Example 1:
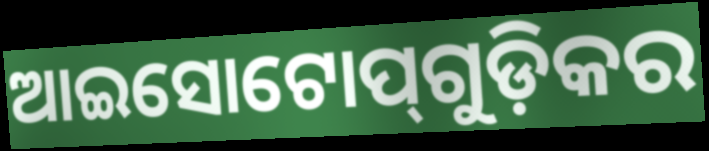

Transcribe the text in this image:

ଆଇସୋଟୋପ୍‌ଗୁଡ଼ିକର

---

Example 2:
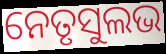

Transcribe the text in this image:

ନେତୃସୁଲଭ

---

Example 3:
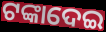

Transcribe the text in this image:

ଟଙ୍କାଦେଇ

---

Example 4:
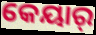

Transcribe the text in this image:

କେୟାର୍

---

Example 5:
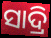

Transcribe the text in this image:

ସାଦ୍ରି